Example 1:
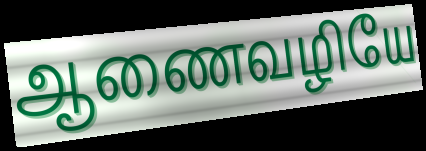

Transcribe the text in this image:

ஆணைவழியே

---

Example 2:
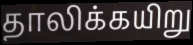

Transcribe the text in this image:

தாலிக்கயிறு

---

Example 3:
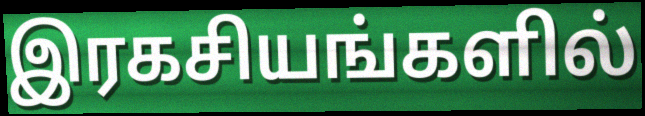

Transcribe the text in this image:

இரகசியங்களில்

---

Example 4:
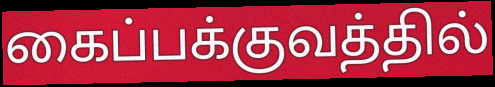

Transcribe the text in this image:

கைப்பக்குவத்தில்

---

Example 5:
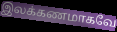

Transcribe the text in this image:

இலக்கணமாகவே